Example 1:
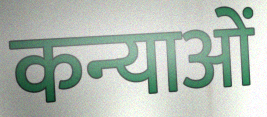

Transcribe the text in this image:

कन्‍याओं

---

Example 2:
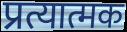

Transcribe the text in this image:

प्रत्यात्मक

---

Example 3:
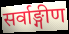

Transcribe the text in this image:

सर्वाङ्गीण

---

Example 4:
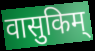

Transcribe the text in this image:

वासुकिम्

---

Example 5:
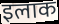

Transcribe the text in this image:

इलाक